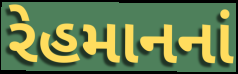
રેહમાનનાં